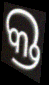
କ୍ତ